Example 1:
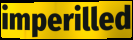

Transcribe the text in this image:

imperilled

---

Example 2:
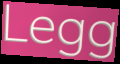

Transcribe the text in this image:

Legg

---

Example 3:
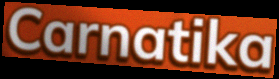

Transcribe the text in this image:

Carnatika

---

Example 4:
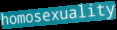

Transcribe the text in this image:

homosexuality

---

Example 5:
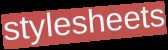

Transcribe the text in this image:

stylesheets